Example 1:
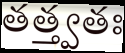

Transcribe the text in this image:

తత్త్వతః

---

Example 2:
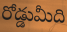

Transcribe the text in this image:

రోడ్డుమీది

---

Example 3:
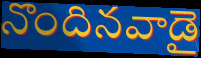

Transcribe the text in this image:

నొందినవాడై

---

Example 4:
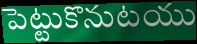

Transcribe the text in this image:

పెట్టుకొనుటయు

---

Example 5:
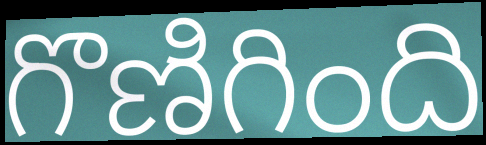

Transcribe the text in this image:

గొణిగింది